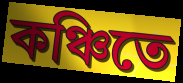
কঞ্চিতে